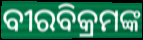
ବୀରବିକ୍ରମଙ୍କ